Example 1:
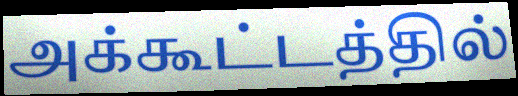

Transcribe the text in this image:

அக்கூட்டத்தில்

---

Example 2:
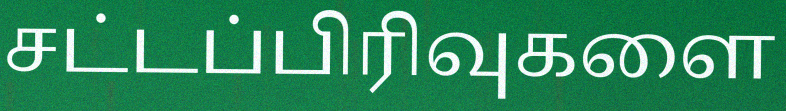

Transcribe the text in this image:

சட்டப்பிரிவுகளை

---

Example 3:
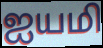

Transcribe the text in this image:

ஐயமி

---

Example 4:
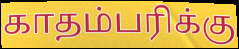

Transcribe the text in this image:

காதம்பரிக்கு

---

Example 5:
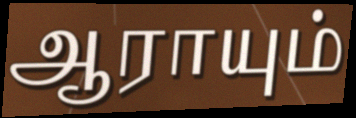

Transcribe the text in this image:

ஆராயும்